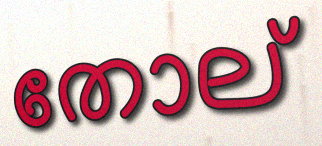
തോല്